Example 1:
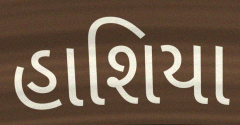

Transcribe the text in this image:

હાશિયા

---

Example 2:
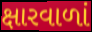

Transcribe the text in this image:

ક્ષારવાળાં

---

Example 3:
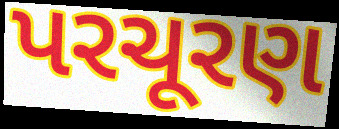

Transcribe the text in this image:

પરચૂરણ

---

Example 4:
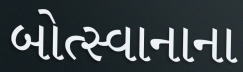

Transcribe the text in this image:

બોત્સ્વાનાના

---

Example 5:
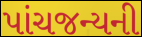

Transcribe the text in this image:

પાંચજન્યની